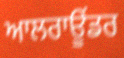
ਆਲਰਾਊਂਡਰ